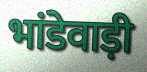
भांडेवाड़ी